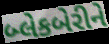
બ્લેકબેરીને